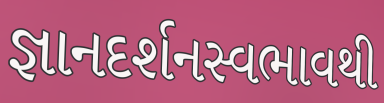
જ્ઞાનદર્શનસ્વભાવથી